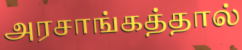
அரசாங்கத்தால்